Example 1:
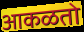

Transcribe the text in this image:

आकळतो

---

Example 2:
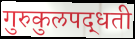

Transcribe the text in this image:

गुरुकुलपद्धती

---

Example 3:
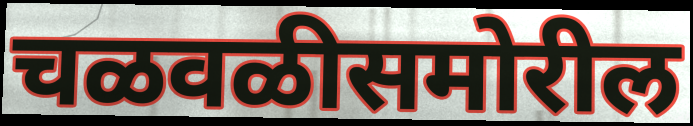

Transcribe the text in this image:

चळवळीसमोरील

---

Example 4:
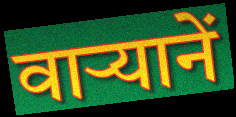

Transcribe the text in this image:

वार्‍यानें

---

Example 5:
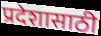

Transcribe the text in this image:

प्रदेशासाठी